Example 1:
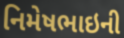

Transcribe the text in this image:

નિમેષભાઇની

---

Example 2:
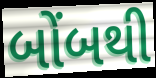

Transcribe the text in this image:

બોંબથી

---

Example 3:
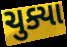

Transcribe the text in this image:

ચુક્યા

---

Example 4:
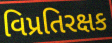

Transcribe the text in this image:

વિપ્રતિરક્ષક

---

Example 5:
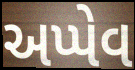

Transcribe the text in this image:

અપ્પેવ